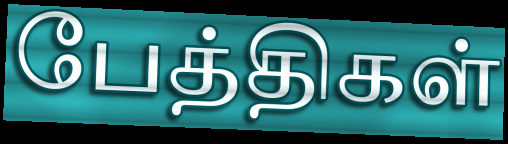
பேத்திகள்